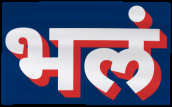
भलं